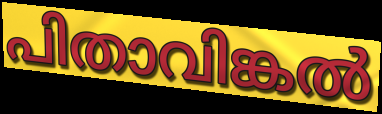
പിതാവിങ്കൽ